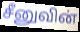
சீனுவின்